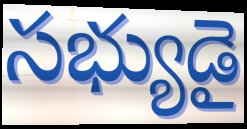
సభ్యుడై